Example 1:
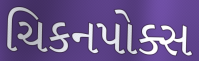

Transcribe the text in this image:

ચિકનપોક્સ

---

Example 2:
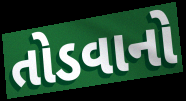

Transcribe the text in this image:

તોડવાનો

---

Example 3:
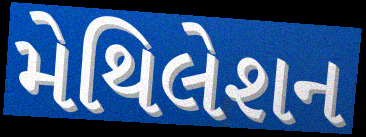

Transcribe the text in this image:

મેથિલેશન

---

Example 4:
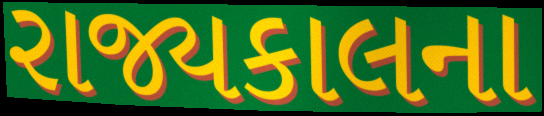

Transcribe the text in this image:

રાજ્યકાલના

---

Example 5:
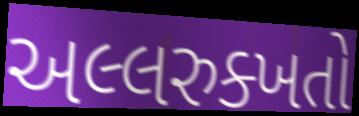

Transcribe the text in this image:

અલ્લરુક્ખતો